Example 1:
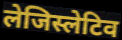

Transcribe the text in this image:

लेजिस्लेटिव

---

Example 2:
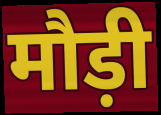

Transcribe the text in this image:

मौड़ी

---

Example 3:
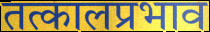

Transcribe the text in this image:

तत्कालप्रभाव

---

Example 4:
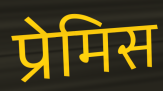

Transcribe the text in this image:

प्रेमिस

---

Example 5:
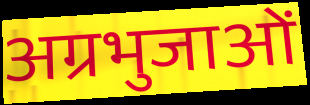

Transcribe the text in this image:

अग्रभुजाओं